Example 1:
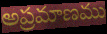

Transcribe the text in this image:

అప్రమాణము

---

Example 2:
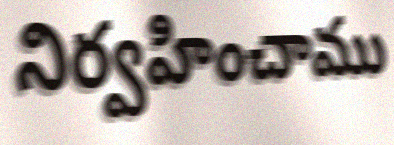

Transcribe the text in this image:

నిర్వహించాము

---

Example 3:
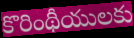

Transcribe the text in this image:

కొరింథీయులకు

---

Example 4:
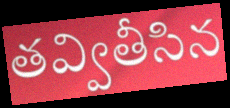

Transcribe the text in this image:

తవ్వితీసిన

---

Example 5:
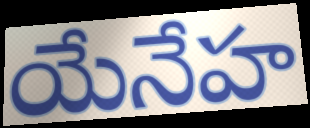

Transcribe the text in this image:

యేనేహ